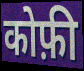
कोफ़ी